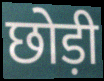
छोड़ी